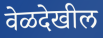
वेळदेखील